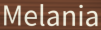
Melania